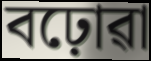
বঢ়োৱা